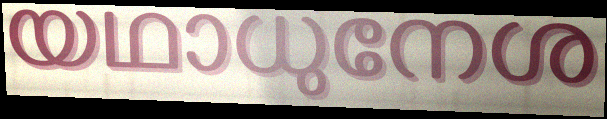
യഥാധുനേശ